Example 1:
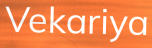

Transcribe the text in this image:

Vekariya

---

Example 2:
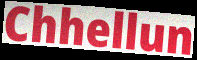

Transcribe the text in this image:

Chhellun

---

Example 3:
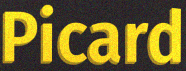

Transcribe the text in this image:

Picard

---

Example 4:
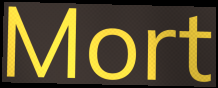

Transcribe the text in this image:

Mort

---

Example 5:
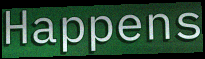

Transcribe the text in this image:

Happens